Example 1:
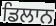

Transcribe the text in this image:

ਡਿਲਾਨ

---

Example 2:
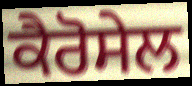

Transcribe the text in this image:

ਕੈਰੋਸੇਲ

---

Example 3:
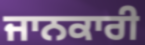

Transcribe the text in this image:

ਜਾਨਕਾਰੀ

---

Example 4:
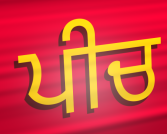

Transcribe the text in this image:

ਪੀਚ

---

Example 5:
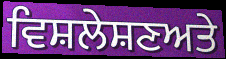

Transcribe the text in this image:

ਵਿਸ਼ਲੇਸ਼ਣਅਤੇ